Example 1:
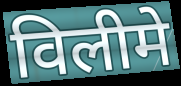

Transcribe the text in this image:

विलीमे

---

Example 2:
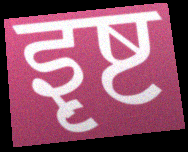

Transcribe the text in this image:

इृष्ट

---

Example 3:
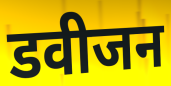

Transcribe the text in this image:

डवीजन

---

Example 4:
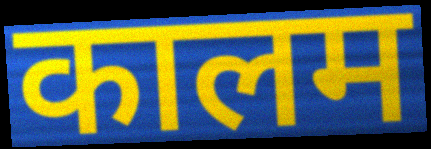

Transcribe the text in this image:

कालम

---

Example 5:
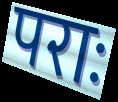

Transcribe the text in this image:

पराः